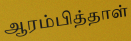
ஆரம்பித்தாள்